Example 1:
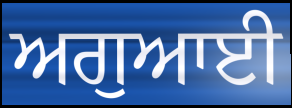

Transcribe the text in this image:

ਅਗੁਆਈ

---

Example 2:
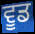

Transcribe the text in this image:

ਵੂਡ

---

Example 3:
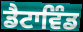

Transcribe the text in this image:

ਡੈਟਾਵਿੰਡ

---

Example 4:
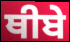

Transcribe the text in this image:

ਥੀਬੇ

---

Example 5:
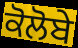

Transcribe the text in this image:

ਕੋਲੋਬੇ